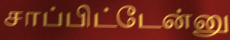
சாப்பிட்டேன்னு